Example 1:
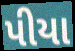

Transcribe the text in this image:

પીયા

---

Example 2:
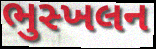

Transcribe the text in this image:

ભુસ્ખલન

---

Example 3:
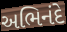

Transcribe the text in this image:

અભિનંદે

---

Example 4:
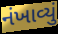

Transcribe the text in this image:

નંખાવ્યું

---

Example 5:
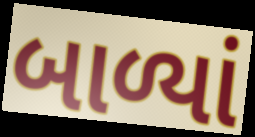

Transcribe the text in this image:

બાળ્યાં